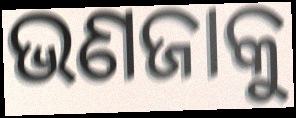
ଭଣଜାକୁ